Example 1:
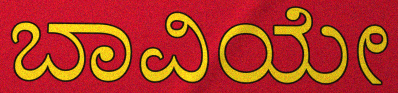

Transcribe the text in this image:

ಬಾವಿಯೇ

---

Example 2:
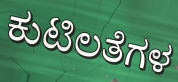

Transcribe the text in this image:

ಕುಟಿಲತೆಗಳ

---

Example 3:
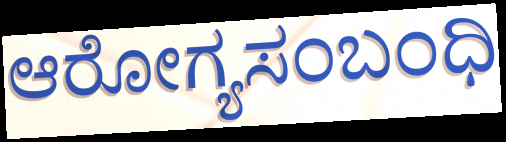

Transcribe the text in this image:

ಆರೋಗ್ಯಸಂಬಂಧಿ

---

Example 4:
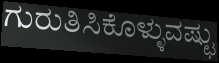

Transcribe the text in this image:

ಗುರುತಿಸಿಕೊಳ್ಳುವಷ್ಟು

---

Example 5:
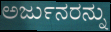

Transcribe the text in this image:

ಅರ್ಜುನರನ್ನು